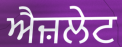
ਐਜ਼ਲੇਟ